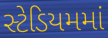
સ્ટેડિયમમાં